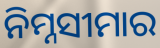
ନିମ୍ନସୀମାର